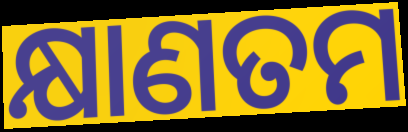
କ୍ଷାଣତମ